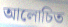
আলোচিত